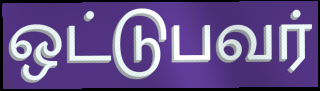
ஒட்டுபவர்